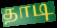
தாடி